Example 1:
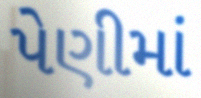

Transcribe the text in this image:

પેણીમાં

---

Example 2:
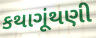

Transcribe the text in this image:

કથાગૂંથણી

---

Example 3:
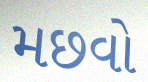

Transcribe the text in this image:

મછવો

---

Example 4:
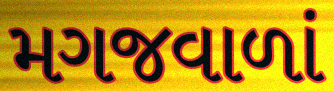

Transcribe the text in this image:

મગજવાળાં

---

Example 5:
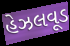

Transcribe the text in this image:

હેઝલવૂડ